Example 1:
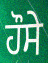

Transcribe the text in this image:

ਹੌਸੇ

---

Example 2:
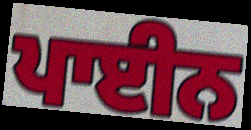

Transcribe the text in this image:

ਪਾਈਨ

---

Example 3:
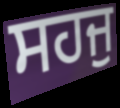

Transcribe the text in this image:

ਸਹਜੁ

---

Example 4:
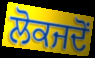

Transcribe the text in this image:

ਲੋਕਜਦੋਂ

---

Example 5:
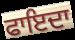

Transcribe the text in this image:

ਫਾਇਦਾ